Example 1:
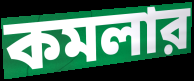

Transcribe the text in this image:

কমলার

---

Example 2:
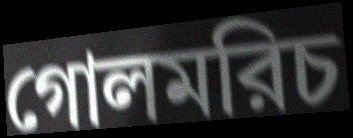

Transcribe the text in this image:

গোলমরিচ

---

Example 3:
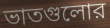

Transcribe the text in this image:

ভাতগুলোর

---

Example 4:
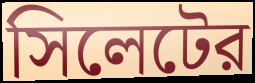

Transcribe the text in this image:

সিলেটের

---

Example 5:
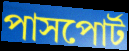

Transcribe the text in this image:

পাসপোর্ট